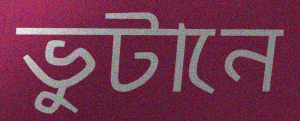
ভুটানে